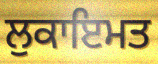
ਲੁਕਾਇਮਤ